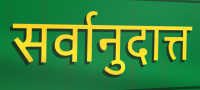
सर्वानुदात्त